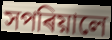
সপৰিয়ালে